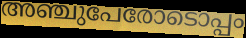
അഞ്ചുപേരോടൊപ്പം